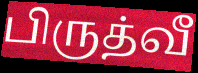
பிருத்வீ